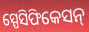
ସ୍ପେସିଫିକେସନ୍